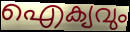
ഐക്യവും